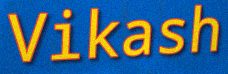
Vikash